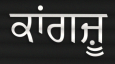
ਕਾਂਗਜ਼ੂ